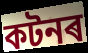
কটনৰ